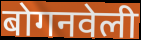
बोगनवेली